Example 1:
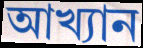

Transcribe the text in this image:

আখ্যান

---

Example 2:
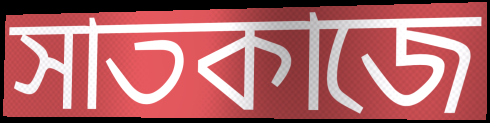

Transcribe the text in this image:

সাতকাজে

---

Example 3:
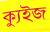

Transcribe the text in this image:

ক্যুইজ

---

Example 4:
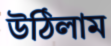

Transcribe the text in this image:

উঠিলাম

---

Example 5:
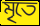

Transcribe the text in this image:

মৃতে